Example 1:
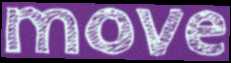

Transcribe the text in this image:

move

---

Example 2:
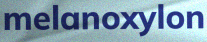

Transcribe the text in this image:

melanoxylon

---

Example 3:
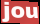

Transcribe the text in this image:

jou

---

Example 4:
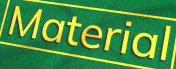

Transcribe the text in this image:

Material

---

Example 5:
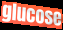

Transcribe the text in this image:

glucose